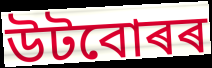
উটবোৰৰ